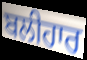
ਬਲੀਹਾਰ